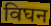
विघन